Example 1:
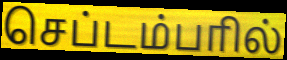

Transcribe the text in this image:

செப்டம்பரில்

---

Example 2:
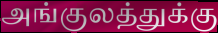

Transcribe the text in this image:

அங்குலத்துக்கு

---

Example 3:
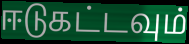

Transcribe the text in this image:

ஈடுகட்டவும்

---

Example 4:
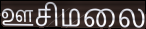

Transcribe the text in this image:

ஊசிமலை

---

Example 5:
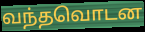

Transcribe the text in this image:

வந்தவொடன